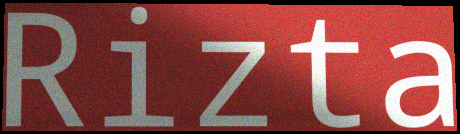
Rizta